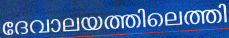
ദേവാലയത്തിലെത്തി